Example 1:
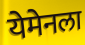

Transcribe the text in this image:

येमेनला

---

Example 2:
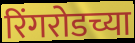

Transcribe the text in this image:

रिंगरोडच्या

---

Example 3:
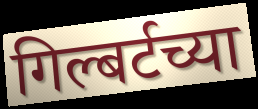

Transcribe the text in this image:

गिल्बर्टच्या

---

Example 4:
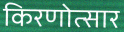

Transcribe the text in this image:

किरणोत्सार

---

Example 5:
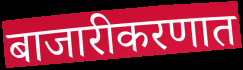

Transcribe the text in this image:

बाजारीकरणात